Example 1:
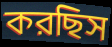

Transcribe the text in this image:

করছিস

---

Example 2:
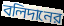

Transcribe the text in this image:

বলিদানের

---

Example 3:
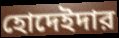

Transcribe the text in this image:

হোদেইদার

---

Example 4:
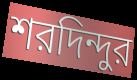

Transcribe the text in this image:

শরদিন্দুর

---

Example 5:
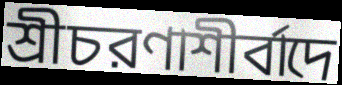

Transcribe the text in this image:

শ্রীচরণাশীর্বাদে